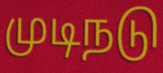
முடிநடு